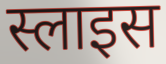
स्लाइस